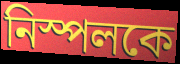
নিস্পলকে